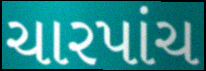
ચારપાંચ